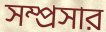
সম্প্রসার